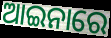
ଆଇନାରେ